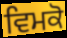
ਵਿਮਕੋ